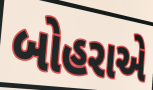
બોહરાએ